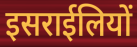
इसराईलियों